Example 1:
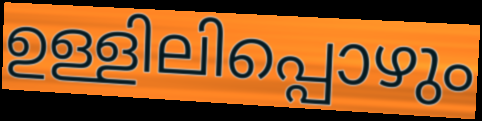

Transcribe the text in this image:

ഉള്ളിലിപ്പൊഴും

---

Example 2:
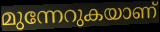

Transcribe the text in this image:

മുന്നേറുകയാണ്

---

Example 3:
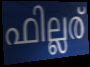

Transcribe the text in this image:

ഫില്ലര്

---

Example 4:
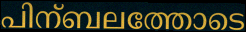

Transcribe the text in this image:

പിന്ബലത്തോടെ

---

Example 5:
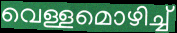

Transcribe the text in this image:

വെള്ളമൊഴിച്ച്